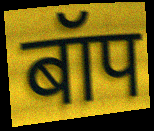
बॉप